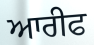
ਆਰੀਫ